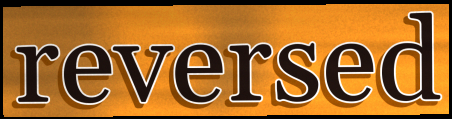
reversed